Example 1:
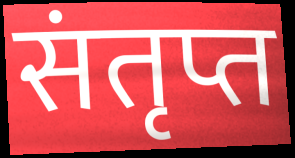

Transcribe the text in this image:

संतृप्त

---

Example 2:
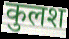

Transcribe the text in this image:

कुलश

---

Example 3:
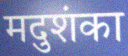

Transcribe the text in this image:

मदुशंका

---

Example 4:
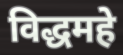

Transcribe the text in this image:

विद्धमहे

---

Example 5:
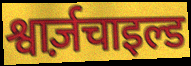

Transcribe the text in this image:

श्वार्ज़चाइल्ड